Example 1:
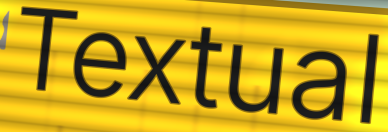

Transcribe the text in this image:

Textual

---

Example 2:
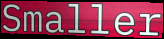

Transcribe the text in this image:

Smaller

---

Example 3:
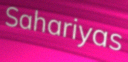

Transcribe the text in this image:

Sahariyas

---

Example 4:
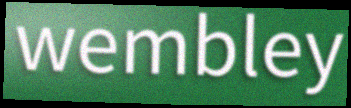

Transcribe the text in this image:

wembley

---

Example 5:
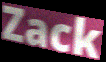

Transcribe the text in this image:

Zack